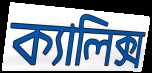
ক্যালিক্স